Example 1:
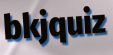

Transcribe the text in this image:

bkjquiz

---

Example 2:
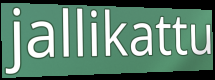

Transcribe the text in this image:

jallikattu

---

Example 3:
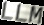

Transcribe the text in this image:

LLM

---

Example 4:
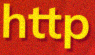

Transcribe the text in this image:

http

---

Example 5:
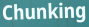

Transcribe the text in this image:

Chunking